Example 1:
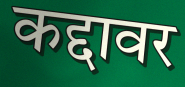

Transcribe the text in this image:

कद्दावर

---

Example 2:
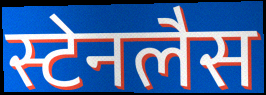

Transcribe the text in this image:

स्टेनलैस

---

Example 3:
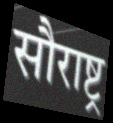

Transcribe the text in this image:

सौराष्ट्र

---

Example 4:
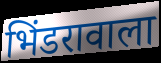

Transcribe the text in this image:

भिंडरावाला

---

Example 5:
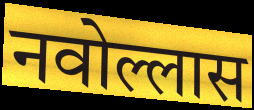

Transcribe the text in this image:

नवोल्लास